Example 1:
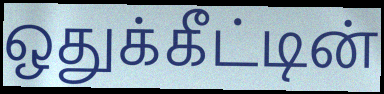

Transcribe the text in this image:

ஒதுக்கீட்டின்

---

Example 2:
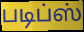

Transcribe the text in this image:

படிப்ஸ்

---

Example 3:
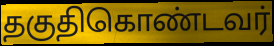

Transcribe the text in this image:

தகுதிகொண்டவர்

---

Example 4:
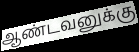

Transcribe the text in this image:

ஆண்டவனுக்கு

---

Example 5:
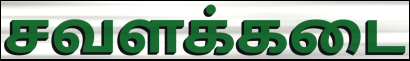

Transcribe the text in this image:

சவளக்கடை